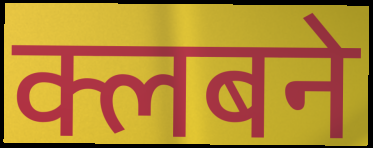
क्लबने